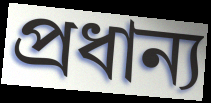
প্রধান্য